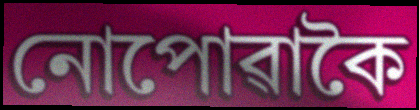
নোপোৱাকৈ